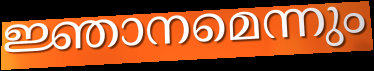
ജ്ഞാനമെന്നും